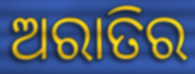
ଅରାତିର